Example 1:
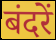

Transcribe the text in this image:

बंदरें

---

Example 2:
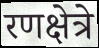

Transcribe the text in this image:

रणक्षेत्रे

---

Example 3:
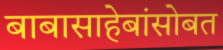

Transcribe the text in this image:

बाबासाहेबांसोबत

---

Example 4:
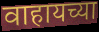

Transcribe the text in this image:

वाहायच्या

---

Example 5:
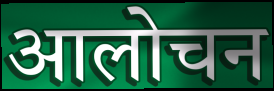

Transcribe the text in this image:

आलोचन